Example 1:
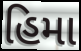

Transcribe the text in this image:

હિમા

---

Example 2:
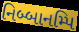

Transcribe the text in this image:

નિબ્બાનમ્પિ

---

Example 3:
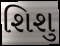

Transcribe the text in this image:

શિશુ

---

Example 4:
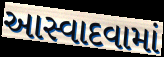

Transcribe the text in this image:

આસ્વાદવામાં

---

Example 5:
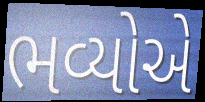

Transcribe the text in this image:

ભવ્યોએ